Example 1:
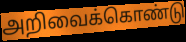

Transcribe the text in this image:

அறிவைக்கொண்டு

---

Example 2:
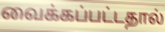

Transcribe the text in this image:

வைக்கப்பட்டதால்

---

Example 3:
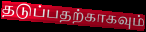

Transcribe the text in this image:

தடுப்பதற்காகவும்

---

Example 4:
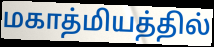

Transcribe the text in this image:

மகாத்மியத்தில்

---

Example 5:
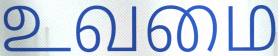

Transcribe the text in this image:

உவமை